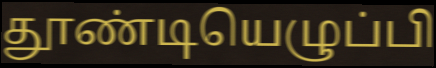
தூண்டியெழுப்பி